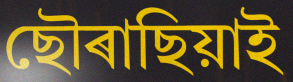
ছৌৰাছিয়াই